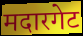
मदारगेट